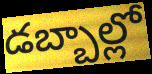
డబ్బాల్లో